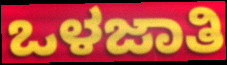
ಒಳಜಾತಿ